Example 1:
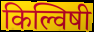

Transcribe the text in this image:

किल्विषी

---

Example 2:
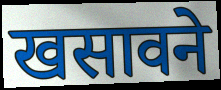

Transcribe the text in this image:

खसावने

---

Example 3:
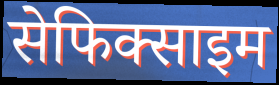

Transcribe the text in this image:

सेफिक्साइम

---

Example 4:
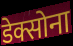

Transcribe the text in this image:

डेक्सोना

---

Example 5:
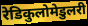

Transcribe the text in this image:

रेडिकुलोमेडुलरी